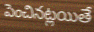
పెంచినట్లయితే